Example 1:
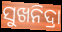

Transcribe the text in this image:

ସୁଖନିଦ୍ରା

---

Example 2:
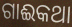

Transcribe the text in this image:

ଗାଈକଥା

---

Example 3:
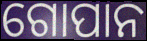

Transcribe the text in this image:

ଗୋପାନ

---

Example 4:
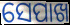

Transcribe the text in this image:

ସେପାଖ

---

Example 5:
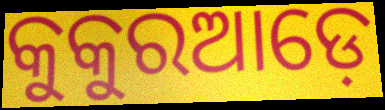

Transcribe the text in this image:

କୁକୁରଆଡ଼େ